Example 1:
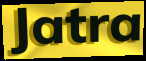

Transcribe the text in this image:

Jatra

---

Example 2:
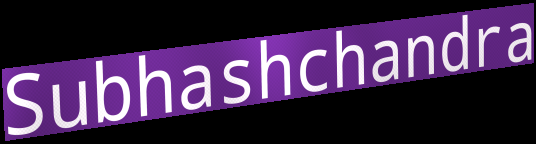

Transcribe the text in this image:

Subhashchandra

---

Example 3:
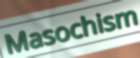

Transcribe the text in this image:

Masochism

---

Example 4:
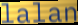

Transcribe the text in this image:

lalan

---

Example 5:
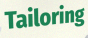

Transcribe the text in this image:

Tailoring